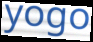
yogo